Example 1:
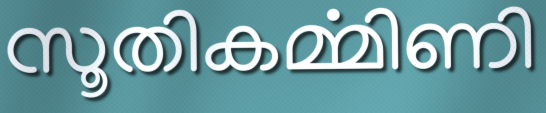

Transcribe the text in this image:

സൂതികൎമ്മിണി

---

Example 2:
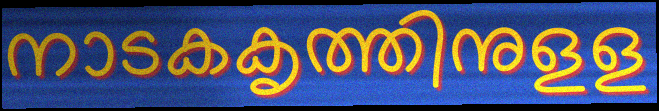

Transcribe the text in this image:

നാടകകൃത്തിനുളള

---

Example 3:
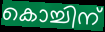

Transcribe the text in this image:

കൊച്ചിന്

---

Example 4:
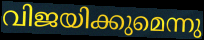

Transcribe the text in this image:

വിജയിക്കുമെന്നു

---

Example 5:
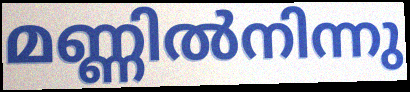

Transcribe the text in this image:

മണ്ണിൽനിന്നു